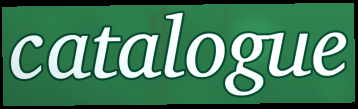
catalogue